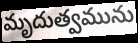
మృదుత్వమును